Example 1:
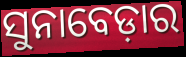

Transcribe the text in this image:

ସୁନାବେଡ଼ାର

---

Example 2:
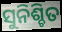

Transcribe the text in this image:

ସୁନିଶ୍ଚିତ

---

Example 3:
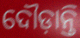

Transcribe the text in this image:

ଦୌଡ଼ାନ୍ତି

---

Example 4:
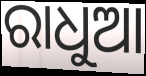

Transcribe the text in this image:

ରାଧୁଆ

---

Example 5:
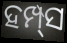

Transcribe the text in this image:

ହମ୍ପ୍‌ସ